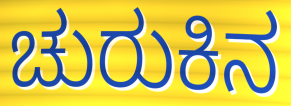
ಚುರುಕಿನ